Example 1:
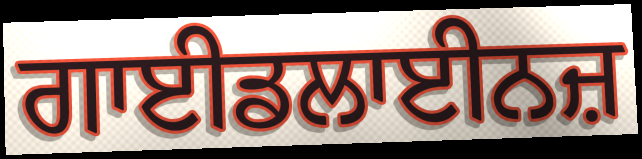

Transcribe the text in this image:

ਗਾਈਡਲਾਈਨਜ਼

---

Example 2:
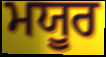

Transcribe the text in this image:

ਮਯੂਰ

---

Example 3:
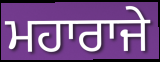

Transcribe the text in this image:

ਮਹਾਰਾਜੇ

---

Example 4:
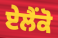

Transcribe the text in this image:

ਏਲੈਂਕੋ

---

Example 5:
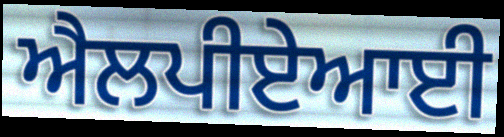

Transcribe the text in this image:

ਐਲਪੀਏਆਈ